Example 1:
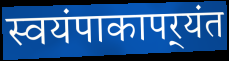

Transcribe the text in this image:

स्वयंपाकापर्यंत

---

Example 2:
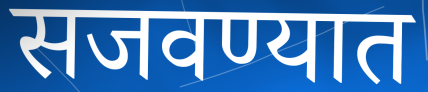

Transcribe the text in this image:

सजवण्यात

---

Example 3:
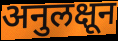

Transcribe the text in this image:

अनुलक्षून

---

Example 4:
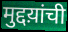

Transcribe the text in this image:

मुद्दय़ांची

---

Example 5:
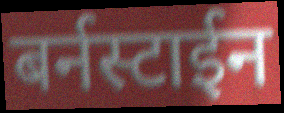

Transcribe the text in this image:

बर्नस्टाईन